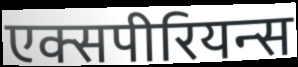
एक्सपीरियन्स